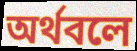
অর্থবলে